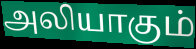
அலியாகும்